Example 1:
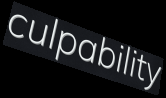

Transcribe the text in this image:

culpability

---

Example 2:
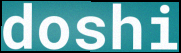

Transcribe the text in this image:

doshi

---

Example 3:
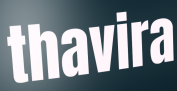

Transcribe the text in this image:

thavira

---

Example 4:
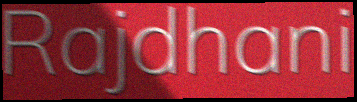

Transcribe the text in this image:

Rajdhani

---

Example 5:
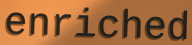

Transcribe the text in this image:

enriched